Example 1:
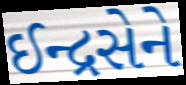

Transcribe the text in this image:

ઈન્દ્રસેને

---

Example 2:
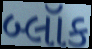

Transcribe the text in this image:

બ્લૉક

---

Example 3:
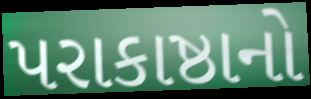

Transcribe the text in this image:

પરાકાષ્ઠાનો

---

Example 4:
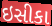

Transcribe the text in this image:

ઇસીકા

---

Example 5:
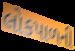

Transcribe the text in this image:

લોકપાળની